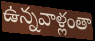
ఉన్నవాళ్లంతా